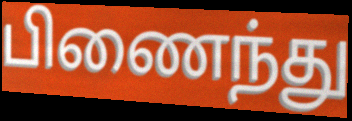
பிணைந்து